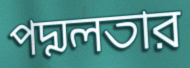
পদ্মলতার